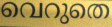
വെറുതെ